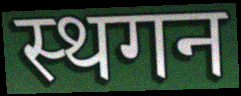
स्थगन